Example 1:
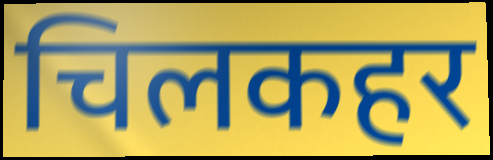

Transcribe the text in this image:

चिलकहर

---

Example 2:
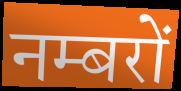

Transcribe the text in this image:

नम्बरों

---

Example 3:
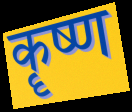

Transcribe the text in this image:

कॄष्ण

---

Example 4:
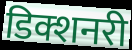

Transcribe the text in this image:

डिक्‍शनरी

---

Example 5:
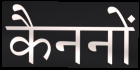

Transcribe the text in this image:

कैननों